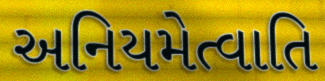
અનિયમેત્વાતિ